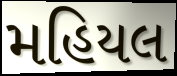
મહિયલ